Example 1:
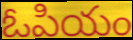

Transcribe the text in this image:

ఓపియం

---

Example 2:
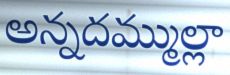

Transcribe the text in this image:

అన్నదమ్ముల్లా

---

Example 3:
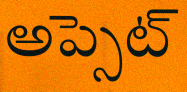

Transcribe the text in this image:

అప్సెట్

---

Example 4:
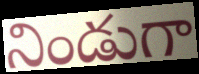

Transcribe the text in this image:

నిండుగా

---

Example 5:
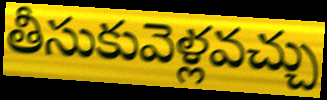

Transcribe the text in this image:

తీసుకువెళ్లవచ్చు